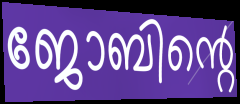
ജോബിന്റെ